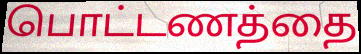
பொட்டணத்தை